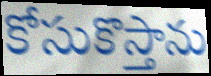
కోసుకొస్తాను